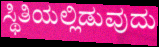
ಸ್ಥಿತಿಯಲ್ಲಿಡುವುದು